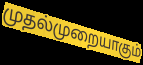
முதல்முறையாகும்